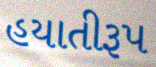
હયાતીરૂપ